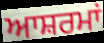
ਆਸ਼ਰਮਾਂ